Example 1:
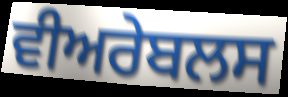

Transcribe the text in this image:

ਵੀਅਰੇਬਲਸ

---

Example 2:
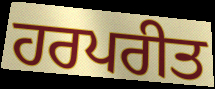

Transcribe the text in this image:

ਹਰਪਰੀਤ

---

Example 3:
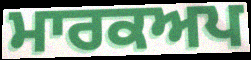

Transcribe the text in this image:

ਮਾਰਕਅਪ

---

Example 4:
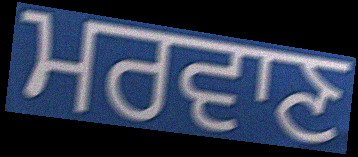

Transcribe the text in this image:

ਮਰਵਾਣ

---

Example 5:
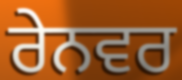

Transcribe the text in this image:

ਰੇਨਵਰ